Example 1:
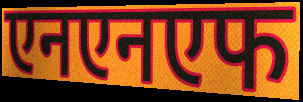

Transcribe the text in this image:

एनएनएफ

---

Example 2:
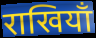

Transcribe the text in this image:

राखियाँ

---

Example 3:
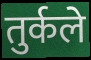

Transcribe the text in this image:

तुर्कले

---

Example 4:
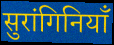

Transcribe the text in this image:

सुरांगिनियाँ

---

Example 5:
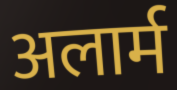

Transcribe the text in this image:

अलार्म